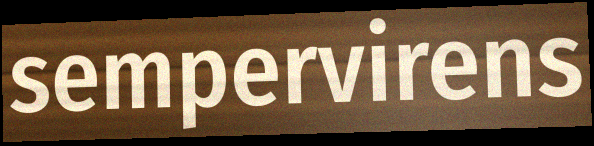
sempervirens